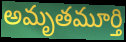
అమృతమూర్తి